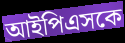
আইপিএসকে